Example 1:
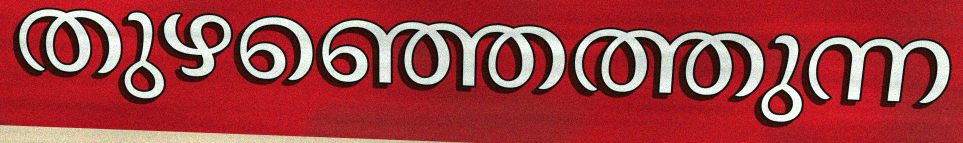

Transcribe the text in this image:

തുഴഞ്ഞെത്തുന്ന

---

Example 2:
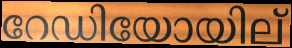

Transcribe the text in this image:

റേഡിയോയില്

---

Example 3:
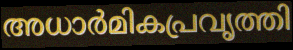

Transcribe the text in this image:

അധാർമികപ്രവൃത്തി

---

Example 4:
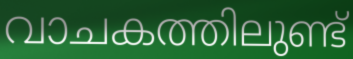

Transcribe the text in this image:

വാചകത്തിലുണ്ട്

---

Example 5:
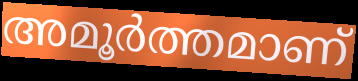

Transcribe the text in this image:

അമൂർത്തമാണ്